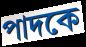
পাদকে